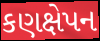
કણક્ષેપન